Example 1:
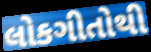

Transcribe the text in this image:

લોકગીતોથી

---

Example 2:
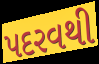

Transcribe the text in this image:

પદરવથી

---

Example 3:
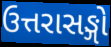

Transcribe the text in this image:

ઉત્તરાસઙ્ગો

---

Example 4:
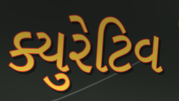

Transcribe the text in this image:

ક્યુરેટિવ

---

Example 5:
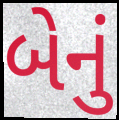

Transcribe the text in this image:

બેનું